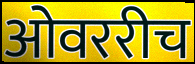
ओवररीच